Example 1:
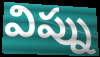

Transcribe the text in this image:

విప్ను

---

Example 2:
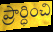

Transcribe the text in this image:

ప్రార్ధించి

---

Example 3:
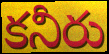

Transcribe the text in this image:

కనీరు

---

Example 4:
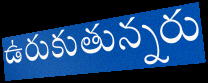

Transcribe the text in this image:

ఉరుకుతున్నరు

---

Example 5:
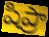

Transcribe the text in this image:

షిప్రా